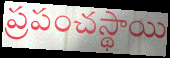
ప్రపంచస్థాయి